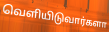
வெளியிடுவார்களா